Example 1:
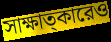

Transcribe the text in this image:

সাক্ষাত্কারেও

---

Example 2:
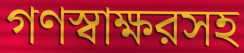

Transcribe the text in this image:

গণস্বাক্ষরসহ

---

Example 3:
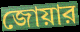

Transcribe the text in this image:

জোয়ার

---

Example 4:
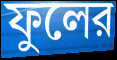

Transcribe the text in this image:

ফুলের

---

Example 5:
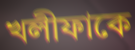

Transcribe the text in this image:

খলীফাকে